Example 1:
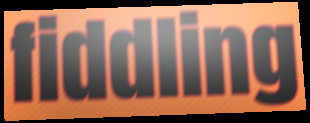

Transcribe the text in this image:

fiddling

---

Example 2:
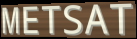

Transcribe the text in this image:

METSAT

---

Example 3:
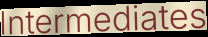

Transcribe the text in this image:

Intermediates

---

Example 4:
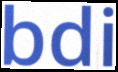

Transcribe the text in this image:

bdi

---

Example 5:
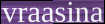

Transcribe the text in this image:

vraasina